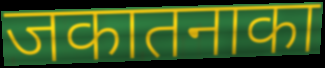
जकातनाका